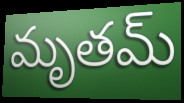
మృతమ్